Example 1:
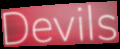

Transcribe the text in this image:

Devils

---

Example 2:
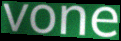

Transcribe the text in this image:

vone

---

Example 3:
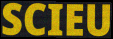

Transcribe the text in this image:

SCIEU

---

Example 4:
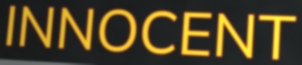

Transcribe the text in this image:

INNOCENT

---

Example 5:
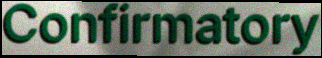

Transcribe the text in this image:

Confirmatory